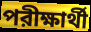
পরীক্ষার্থী